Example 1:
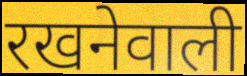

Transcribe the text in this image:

रखनेवाली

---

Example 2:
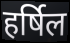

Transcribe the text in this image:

हर्षिल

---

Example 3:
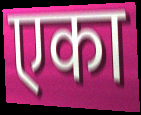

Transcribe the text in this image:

एका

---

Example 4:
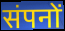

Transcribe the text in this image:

संपनों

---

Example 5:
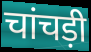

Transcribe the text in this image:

चांचड़ी